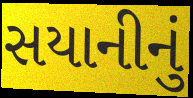
સયાનીનું